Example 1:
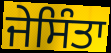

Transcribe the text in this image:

ਜੇਸਿੰਤਾ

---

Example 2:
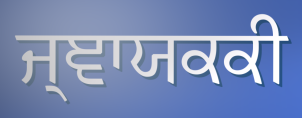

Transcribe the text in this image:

ਜ੍ਞਾਯਕਕੀ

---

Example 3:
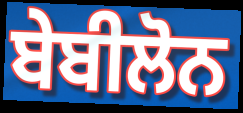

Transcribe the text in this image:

ਬੇਬੀਲੋਨ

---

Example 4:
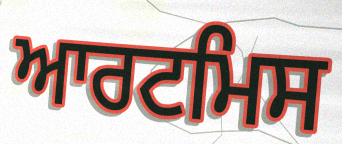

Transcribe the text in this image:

ਆਰਟਮਿਸ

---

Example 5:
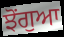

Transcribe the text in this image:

ਝੋਂਗੁਆ